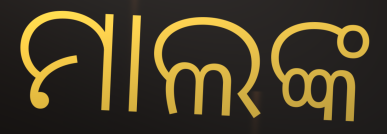
ମାଲଙ୍କ